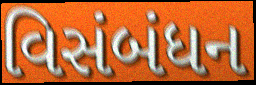
વિસંબંધન